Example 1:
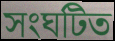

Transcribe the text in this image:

সংঘটিত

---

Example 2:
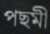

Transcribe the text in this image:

পছমী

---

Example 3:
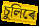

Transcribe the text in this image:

চুলিৰে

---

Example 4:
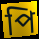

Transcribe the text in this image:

পি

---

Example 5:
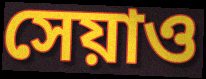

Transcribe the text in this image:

সেয়াও